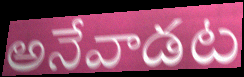
అనేవాడట